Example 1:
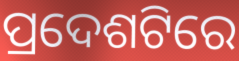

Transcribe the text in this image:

ପ୍ରଦେଶଟିରେ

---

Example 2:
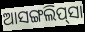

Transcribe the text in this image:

ଆସଙ୍ଗଲିପ୍‌ସା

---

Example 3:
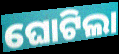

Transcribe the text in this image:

ଘୋଟିଲା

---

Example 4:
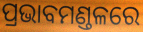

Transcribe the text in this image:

ପ୍ରଭାବମଣ୍ଡଳରେ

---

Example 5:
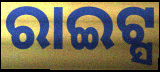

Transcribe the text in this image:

ରାଇଟ୍ସ